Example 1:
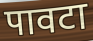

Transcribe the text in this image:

पावटा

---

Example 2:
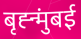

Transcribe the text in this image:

बृह्न्मुंबई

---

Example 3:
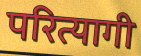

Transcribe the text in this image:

परित्यागी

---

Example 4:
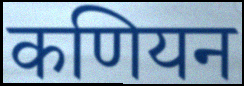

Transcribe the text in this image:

कणियन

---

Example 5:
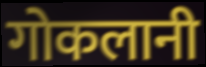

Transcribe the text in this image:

गोकलानी